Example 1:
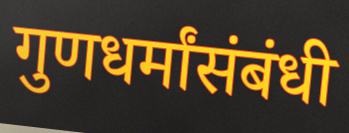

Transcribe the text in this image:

गुणधर्मांसंबंधी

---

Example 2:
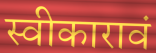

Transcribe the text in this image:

स्वीकारावं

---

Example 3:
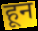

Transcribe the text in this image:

हून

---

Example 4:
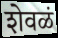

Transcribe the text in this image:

शेवळं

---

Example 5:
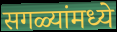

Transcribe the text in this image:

सगळ्यांमध्ये